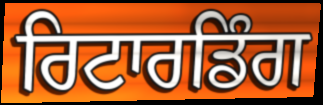
ਰਿਟਾਰਡਿੰਗ